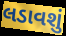
લડાવશું